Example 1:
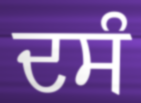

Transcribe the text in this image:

ਦਸੰ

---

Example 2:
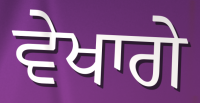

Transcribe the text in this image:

ਵੇਖਾਗੇ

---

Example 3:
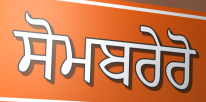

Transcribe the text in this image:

ਸੋਮਬਰੇਰੋ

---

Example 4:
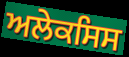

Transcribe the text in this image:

ਅਲੇਕਸਿਸ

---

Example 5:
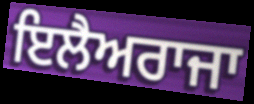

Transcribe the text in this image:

ਇਲੈਅਰਾਜਾ